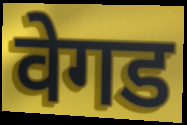
वेगड